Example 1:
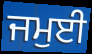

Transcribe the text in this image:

ਜਮੁਈ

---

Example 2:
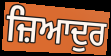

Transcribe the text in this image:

ਜ਼ਿਆਦੁਰ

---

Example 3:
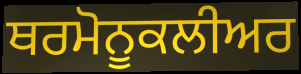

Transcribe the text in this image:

ਥਰਮੋਨੂਕਲੀਅਰ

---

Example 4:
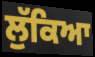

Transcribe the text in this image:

ਲੁੱਕਿਆ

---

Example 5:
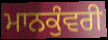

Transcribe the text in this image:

ਮਾਨਕੁੰਵਰੀ